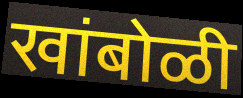
खांबोळी